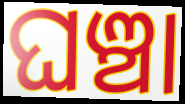
ଘଞ୍ଚା